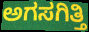
ಅಗಸಗಿತ್ತಿ